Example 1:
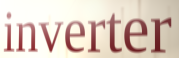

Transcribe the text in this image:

inverter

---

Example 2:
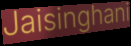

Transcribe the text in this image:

Jaisinghani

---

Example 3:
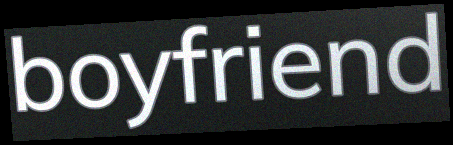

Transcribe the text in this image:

boyfriend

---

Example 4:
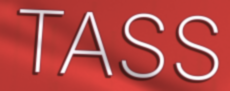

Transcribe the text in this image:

TASS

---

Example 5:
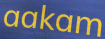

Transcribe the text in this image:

aakam